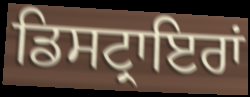
ਡਿਸਟ੍ਰਾਇਰਾਂ